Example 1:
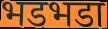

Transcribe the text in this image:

भडभडा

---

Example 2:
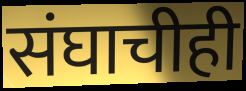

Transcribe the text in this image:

संघाचीही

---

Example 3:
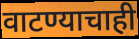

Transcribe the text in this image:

वाटण्याचाही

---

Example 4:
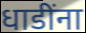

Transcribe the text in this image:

धाडींना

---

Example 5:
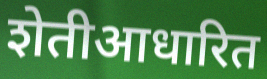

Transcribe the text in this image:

शेतीआधारित